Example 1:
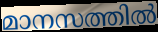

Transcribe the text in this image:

മാനസത്തിൽ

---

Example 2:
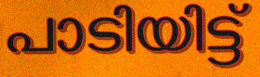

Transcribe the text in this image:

പാടിയിട്ട്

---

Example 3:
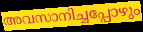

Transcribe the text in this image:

അവസാനിച്ചപ്പോഴും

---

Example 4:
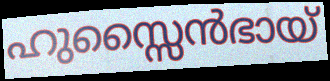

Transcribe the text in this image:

ഹുസ്സൈൻഭായ്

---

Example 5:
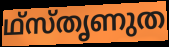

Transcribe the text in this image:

ഥ്സ്തൃണുത